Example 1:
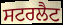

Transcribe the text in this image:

ਸਟਰਲੈਟ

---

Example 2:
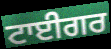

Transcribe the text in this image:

ਟਾਈਗਰ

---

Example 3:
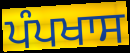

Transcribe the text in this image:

ਪੰਪਖਾਸ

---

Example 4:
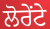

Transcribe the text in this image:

ਲੋਰੇਂਟੇ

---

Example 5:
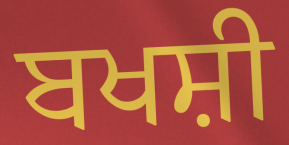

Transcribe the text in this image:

ਬਖਸ਼ੀ